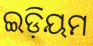
ଇଡ଼ିୟମ